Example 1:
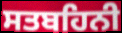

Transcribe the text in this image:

ਸਤਬਹਿਨੀ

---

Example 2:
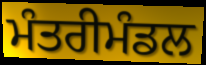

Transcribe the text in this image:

ਮੰਤਰੀਮੰਡਲ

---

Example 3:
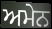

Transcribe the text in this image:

ਅਮੇਨ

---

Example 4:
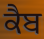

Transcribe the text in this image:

ਕੈਬ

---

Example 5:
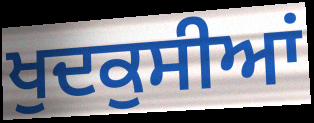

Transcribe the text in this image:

ਖੁਦਕੁਸੀਆਂ